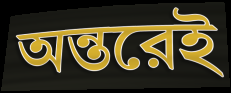
অন্তরেই